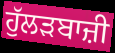
ਹੁੱਲੜਬਾਜ਼ੀ